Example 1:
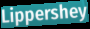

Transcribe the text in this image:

Lippershey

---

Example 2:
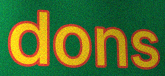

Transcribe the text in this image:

dons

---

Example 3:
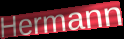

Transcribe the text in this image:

Hermann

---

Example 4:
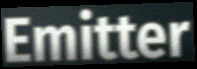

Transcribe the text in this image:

Emitter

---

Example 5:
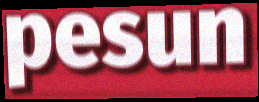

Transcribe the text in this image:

pesun